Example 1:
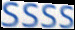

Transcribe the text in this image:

SSSS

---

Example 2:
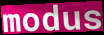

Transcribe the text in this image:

modus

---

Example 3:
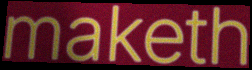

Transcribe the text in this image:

maketh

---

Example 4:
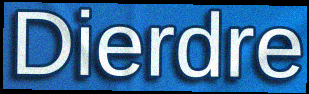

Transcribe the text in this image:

Dierdre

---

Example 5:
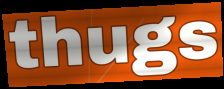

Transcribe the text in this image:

thugs